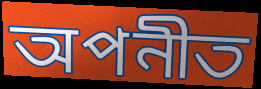
অপনীত